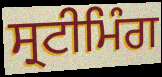
ਸ੍ਰਟੀਮਿੰਗ